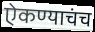
ऐकण्याचंच